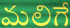
మలిగే